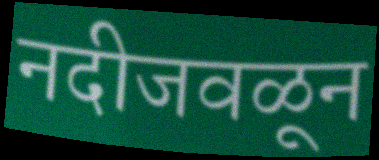
नदीजवळून